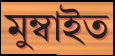
মুম্বাইত